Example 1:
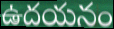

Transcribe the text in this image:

ఉదయనం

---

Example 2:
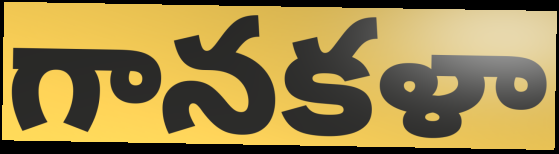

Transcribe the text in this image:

గానకళా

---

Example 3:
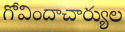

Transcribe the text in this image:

గోవిందాచార్యుల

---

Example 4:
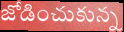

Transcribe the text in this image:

జోడించుకున్న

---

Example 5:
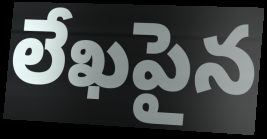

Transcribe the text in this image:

లేఖపైన